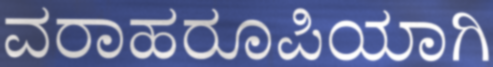
ವರಾಹರೂಪಿಯಾಗಿ